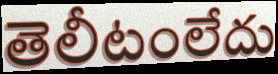
తెలీటంలేదు